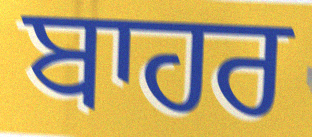
ਬਾਹਰ